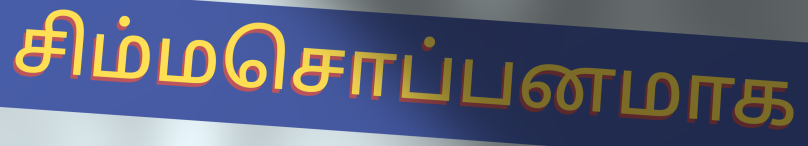
சிம்மசொப்பனமாக